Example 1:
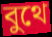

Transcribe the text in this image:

বুথে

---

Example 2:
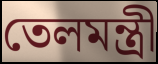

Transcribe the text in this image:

তেলমন্ত্রী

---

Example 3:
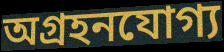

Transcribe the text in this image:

অগ্রহনযোগ্য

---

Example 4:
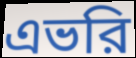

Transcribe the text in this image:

এভরি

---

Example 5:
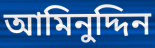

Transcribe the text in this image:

আমিনুদ্দিন